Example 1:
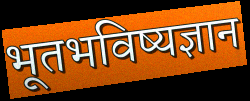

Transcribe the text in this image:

भूतभविष्यज्ञान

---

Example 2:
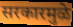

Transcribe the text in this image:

सरकारमुळे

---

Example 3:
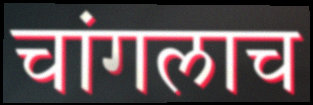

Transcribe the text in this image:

चांगलाच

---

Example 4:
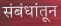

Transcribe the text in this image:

संबंधांतून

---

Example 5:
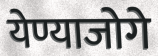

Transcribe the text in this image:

येण्याजोगे